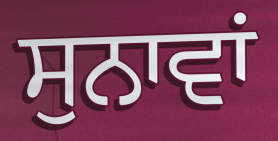
ਸੁਨਾਵਾਂ